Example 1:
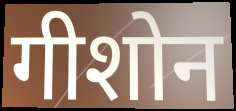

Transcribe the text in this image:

गीशोन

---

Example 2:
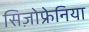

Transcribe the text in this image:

सिज़ोफ्रेनिया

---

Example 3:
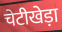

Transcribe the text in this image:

चेटीखेड़ा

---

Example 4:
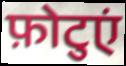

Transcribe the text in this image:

फ़ोटुएं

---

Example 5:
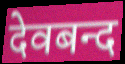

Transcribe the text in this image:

देवबन्द